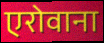
एरोवाना